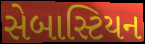
સેબાસ્ટિયન